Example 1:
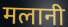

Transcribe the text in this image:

मलानी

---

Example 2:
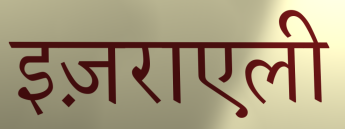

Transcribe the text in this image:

इज़राएली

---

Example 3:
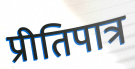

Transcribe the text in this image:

प्रीतिपात्र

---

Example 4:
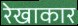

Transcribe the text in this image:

रेखाकार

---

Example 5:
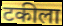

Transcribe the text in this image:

टकीला